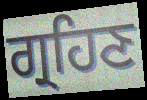
ਗ੍ਰਹਿਣ